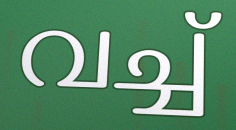
വച്ച്